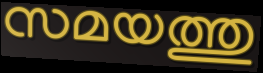
സമയത്തു